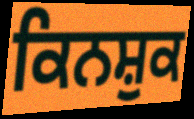
ਕਿਨਸ਼ੁਕ